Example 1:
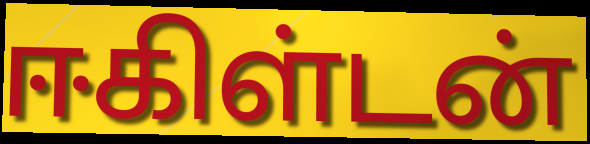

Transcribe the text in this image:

ஈகிள்டன்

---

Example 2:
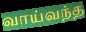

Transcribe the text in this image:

வாய்வந்த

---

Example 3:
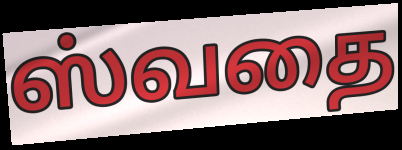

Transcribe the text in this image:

ஸ்வதை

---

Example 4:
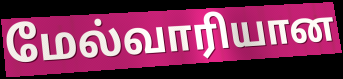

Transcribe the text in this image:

மேல்வாரியான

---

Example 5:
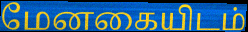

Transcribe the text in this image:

மேனகையிடம்